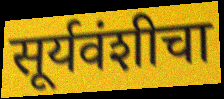
सूर्यवंशीचा